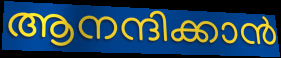
ആനന്ദിക്കാൻ